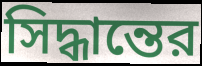
সিদ্ধান্তের